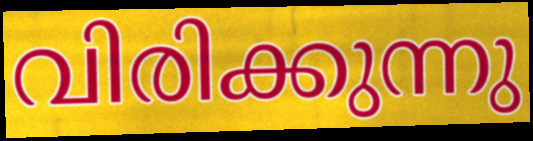
വിരിക്കുന്നു